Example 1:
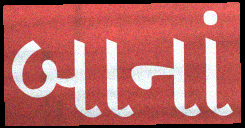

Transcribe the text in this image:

બાનાં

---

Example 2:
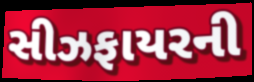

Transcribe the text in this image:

સીઝફાયરની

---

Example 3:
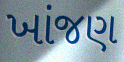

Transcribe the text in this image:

ખાંજણ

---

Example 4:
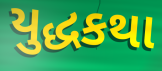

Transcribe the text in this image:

યુદ્ધકથા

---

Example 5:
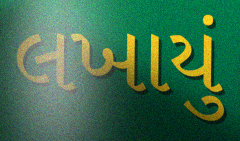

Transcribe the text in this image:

લખાયું